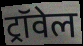
ट्रॉवेल